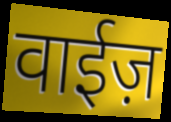
वाईज़